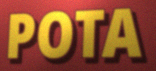
POTA